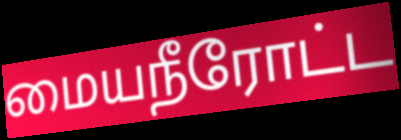
மையநீரோட்ட